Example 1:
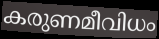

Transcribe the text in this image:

കരുണമീവിധം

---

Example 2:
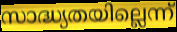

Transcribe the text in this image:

സാദ്ധ്യതയില്ലെന്ന്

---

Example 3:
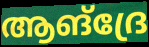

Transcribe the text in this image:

ആങ്ദ്രേ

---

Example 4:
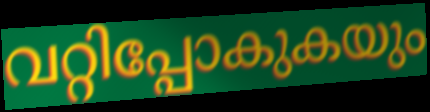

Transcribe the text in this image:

വറ്റിപ്പോകുകയും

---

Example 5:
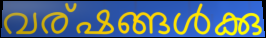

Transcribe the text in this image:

വര്ഷങ്ങൾക്കു